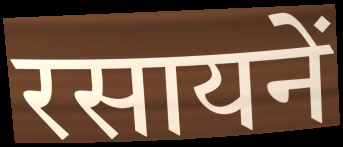
रसायनें